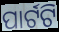
ପାର୍ଟଟି